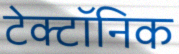
टेक्टॉनिक